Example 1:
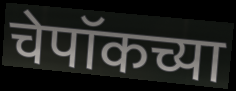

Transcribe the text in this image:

चेपॉकच्या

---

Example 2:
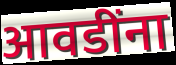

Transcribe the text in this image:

आवडींना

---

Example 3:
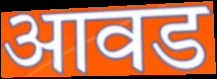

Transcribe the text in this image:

आवड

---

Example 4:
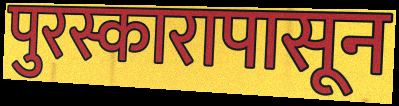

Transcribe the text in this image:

पुरस्कारापासून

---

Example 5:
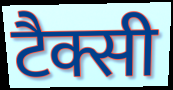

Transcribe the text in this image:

टैक्सी